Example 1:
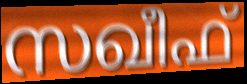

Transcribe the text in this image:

സഖീഫ്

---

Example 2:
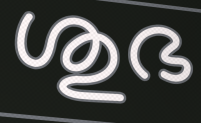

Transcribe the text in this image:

ശുഭ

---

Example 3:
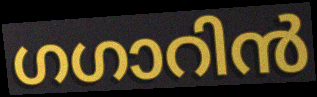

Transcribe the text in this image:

ഗഗാറിൻ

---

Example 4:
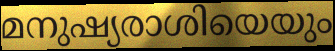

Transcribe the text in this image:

മനുഷ്യരാശിയെയും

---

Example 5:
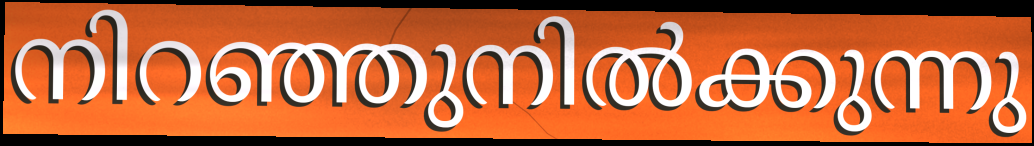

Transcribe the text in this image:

നിറഞ്ഞുനിൽക്കുന്നു